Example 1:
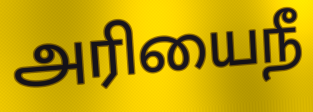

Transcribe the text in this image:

அரியைநீ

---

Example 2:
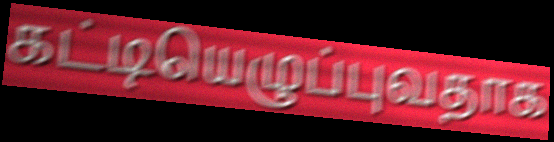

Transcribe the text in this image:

கட்டியெழுப்புவதாக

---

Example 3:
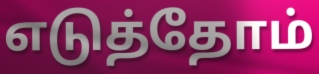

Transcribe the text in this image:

எடுத்தோம்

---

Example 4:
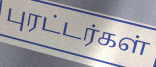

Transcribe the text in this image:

புரட்டர்கள்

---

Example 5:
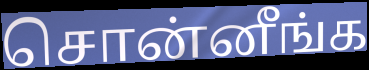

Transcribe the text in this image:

சொன்னீங்க